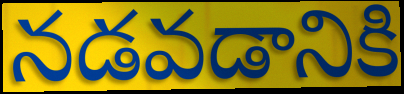
నడవడానికి